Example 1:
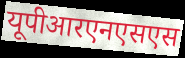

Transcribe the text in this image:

यूपीआरएनएसएस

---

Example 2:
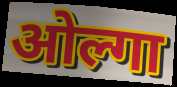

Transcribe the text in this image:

ओल्गा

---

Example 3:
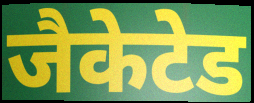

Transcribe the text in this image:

जैकेटेड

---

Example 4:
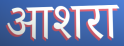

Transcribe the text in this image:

आशरा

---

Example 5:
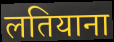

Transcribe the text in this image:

लतियाना